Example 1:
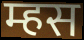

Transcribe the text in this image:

म्हस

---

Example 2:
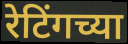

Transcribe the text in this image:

रेटिंगच्या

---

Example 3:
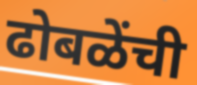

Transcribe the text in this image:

ढोबळेंची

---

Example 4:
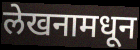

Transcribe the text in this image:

लेखनामधून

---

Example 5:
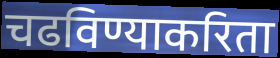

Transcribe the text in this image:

चढविण्याकरिता